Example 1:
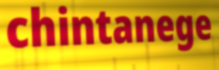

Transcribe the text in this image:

chintanege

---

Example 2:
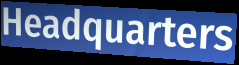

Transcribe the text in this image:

Headquarters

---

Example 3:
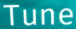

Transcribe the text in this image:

Tune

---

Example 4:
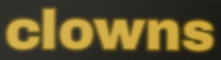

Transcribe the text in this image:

clowns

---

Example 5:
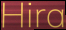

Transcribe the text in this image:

Hira